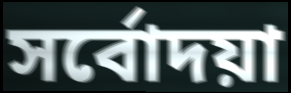
সৰ্বোদয়া